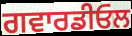
ਗਵਾਰਡੀਓਲ